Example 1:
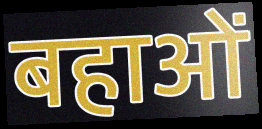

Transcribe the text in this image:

बहाओं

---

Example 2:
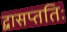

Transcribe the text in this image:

द्वासप्ततिः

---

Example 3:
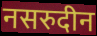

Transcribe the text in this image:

नसरुदीन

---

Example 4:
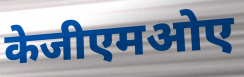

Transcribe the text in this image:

केजीएमओए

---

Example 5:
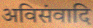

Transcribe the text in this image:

अविसंवादि